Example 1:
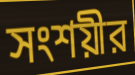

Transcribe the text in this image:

সংশয়ীর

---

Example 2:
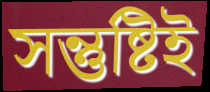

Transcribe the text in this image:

সন্তুষ্টিই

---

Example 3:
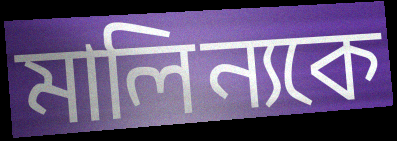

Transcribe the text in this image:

মালিন্যকে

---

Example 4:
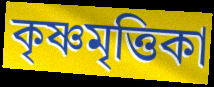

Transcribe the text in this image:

কৃষ্ণমৃত্তিকা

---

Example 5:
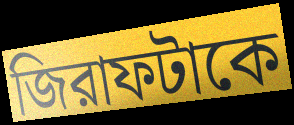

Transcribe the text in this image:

জিরাফটাকে